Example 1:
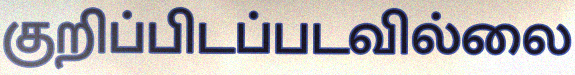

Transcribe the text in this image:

குறிப்பிடப்படவில்லை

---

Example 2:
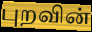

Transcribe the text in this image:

புறவின்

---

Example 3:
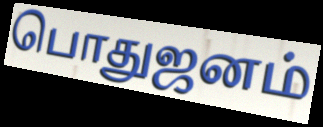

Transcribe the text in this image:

பொதுஜனம்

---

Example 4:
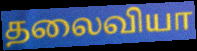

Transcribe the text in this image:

தலைவியா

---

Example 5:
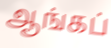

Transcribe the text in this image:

ஆங்கப்